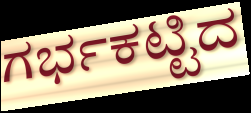
ಗರ್ಭಕಟ್ಟಿದ